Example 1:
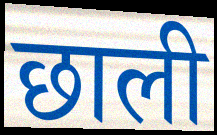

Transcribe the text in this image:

छाली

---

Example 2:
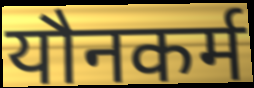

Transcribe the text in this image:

यौनकर्म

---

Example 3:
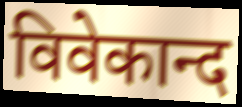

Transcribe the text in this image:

विवेकान्द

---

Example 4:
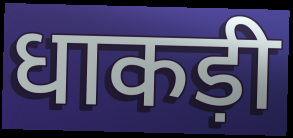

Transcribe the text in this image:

धाकड़ी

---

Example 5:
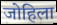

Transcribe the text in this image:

जोहिला